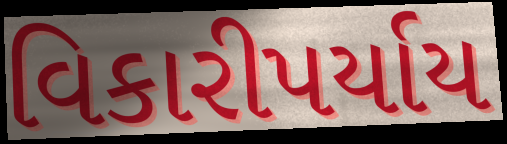
વિકારીપર્યાય